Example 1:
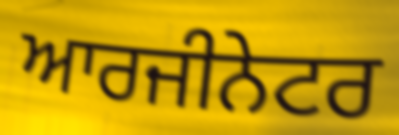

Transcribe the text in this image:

ਆਰਜੀਨੇਟਰ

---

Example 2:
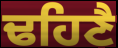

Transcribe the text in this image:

ਢਹਿਣੈ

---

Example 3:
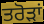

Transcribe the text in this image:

ਤਰੋੜਾਂ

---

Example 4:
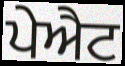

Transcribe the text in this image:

ਪੇਐਟ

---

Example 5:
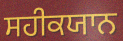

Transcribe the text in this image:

ਸਹੀਕਯਾਨ